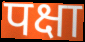
पक्षा